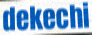
dekechi